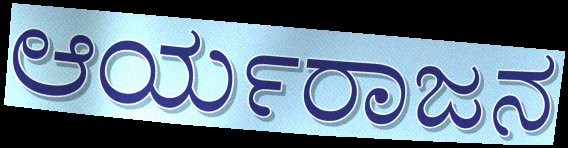
ಆರ್ಯರಾಜನ